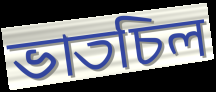
ভাতচিল